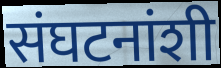
संघटनांशी